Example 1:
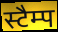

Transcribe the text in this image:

स्टैम्प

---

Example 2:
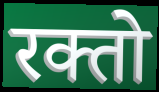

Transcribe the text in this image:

रक्तो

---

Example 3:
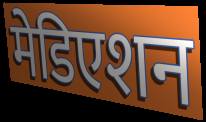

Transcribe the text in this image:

मेडिएशन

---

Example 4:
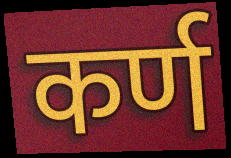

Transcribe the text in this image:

कर्ण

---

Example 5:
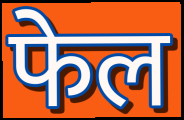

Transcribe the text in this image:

फेल